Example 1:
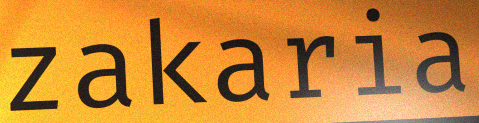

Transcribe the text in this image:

zakaria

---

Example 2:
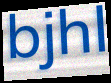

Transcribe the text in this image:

bjhl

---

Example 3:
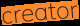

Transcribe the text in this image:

creator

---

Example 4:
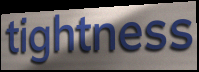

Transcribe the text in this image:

tightness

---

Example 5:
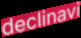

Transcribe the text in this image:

declinavi